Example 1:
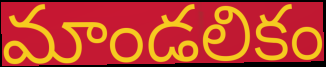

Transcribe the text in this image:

మాండలికం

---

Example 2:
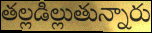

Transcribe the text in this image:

తల్లడిల్లుతున్నారు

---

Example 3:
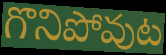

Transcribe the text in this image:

గొనిపోవుట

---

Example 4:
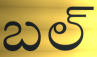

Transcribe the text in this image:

బల్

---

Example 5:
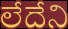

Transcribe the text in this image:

లేదేని